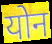
योन